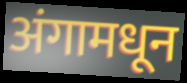
अंगामधून